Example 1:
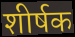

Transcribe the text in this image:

शीर्षक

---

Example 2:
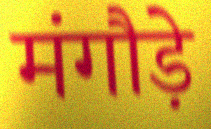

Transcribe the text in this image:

मंगौड़े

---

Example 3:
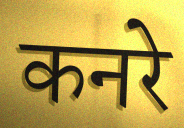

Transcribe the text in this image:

कनरे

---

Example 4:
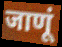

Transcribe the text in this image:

जाणूं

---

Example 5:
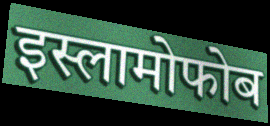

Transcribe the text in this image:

इस्लामोफोब